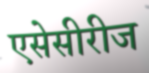
एसेसीरीज